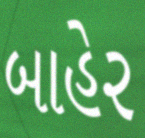
બાહેર